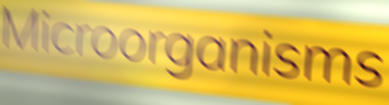
Microorganisms